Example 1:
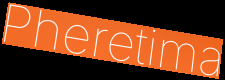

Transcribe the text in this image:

Pheretima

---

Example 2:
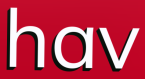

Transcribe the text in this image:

hav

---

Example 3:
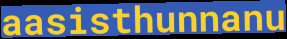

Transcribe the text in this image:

aasisthunnanu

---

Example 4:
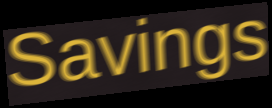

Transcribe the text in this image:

Savings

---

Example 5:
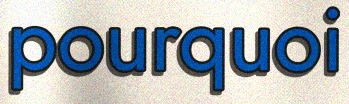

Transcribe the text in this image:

pourquoi